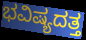
ಭವಿಷ್ಯದತ್ತ